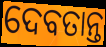
ଦେବତାନ୍ତ